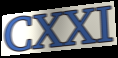
CXXI